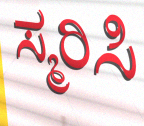
ಸ್ಮರಿಸಿ